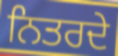
ਨਿਤਰਦੇ